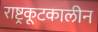
राष्ट्रकूटकालीन